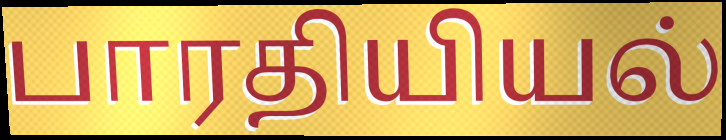
பாரதியியல்